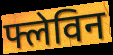
फ्लेविन